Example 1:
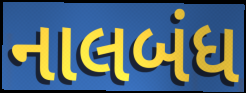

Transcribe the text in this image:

નાલબંધ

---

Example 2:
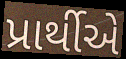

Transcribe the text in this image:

પ્રાર્થીએ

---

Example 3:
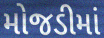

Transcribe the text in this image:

મોજડીમાં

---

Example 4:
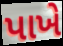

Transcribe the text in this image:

પાખે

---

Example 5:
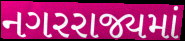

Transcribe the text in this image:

નગરરાજ્યમાં